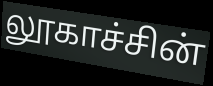
லூகாச்சின்